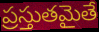
ప్రస్తుతమైతే